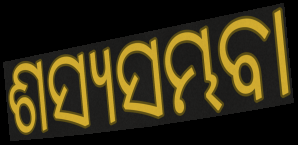
ଶସ୍ୟସମ୍ଭବା